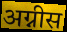
अग्नीस